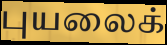
புயலைக்